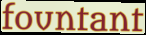
fountant